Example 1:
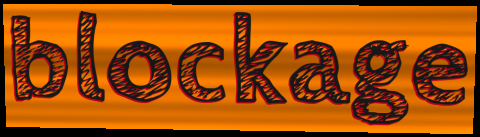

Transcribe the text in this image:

blockage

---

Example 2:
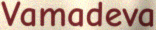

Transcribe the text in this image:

Vamadeva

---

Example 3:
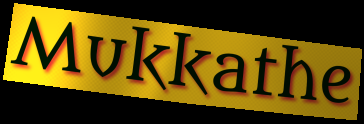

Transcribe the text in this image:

Mukkathe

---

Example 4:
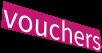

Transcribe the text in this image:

vouchers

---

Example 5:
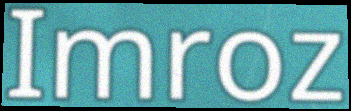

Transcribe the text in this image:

Imroz